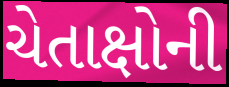
ચેતાક્ષોની